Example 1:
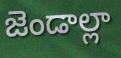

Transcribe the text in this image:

జెండాల్లా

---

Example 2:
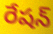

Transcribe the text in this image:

రేషన్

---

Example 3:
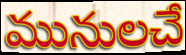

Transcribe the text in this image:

మునులచే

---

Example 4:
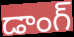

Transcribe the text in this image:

డాంగ్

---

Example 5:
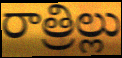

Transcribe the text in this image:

రాత్రిల్లు